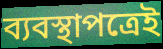
ব্যবস্থাপত্রেই